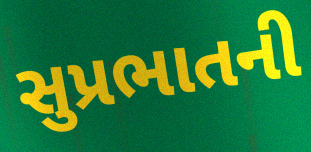
સુપ્રભાતની